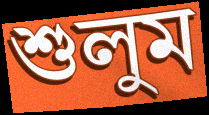
শুলুম